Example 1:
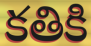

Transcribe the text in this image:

కతికి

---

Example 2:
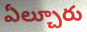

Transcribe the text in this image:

ఏల్చూరు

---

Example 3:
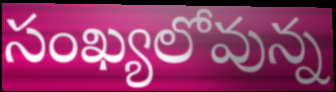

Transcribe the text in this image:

సంఖ్యలోవున్న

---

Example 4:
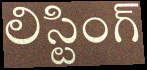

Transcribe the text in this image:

లిస్టింగ్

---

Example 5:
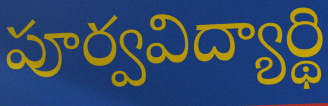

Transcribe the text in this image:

పూర్వవిద్యార్థి